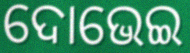
ଦୋଭେଇ